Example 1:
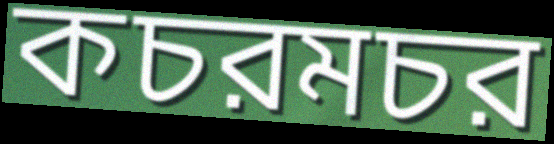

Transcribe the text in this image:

কচরমচর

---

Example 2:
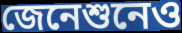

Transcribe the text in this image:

জেনেশুনেও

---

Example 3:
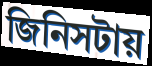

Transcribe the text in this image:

জিনিসটায়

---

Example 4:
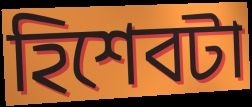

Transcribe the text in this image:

হিশেবটা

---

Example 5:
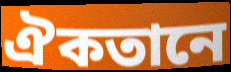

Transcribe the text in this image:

ঐকতানে